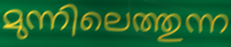
മുന്നിലെത്തുന്ന